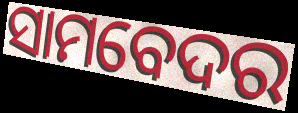
ସାମବେଦର